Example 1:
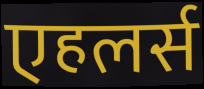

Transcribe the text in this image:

एहलर्स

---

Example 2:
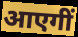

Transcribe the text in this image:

आएगीं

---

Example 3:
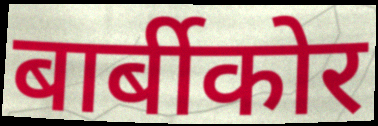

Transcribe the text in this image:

बार्बीकोर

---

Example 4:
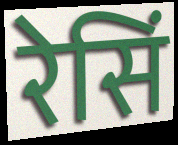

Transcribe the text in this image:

रेसिं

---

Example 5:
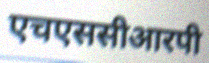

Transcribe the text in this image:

एचएससीआरपी